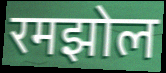
रमझोल